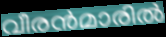
വീരൻമാരിൽ